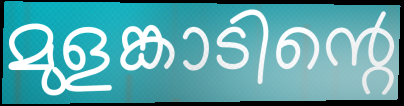
മുളങ്കാടിന്റെ